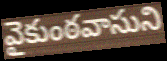
వైకుంఠవాసుని